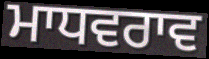
ਮਾਧਵਰਾਵ